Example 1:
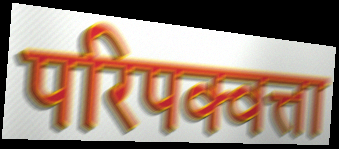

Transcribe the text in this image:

परिपक्वत्ता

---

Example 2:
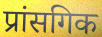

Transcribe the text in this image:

प्रांसगिक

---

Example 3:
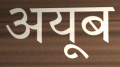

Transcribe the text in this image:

अयूब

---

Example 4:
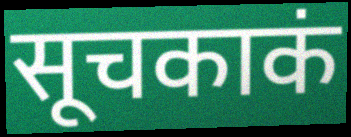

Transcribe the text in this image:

सूचकाकं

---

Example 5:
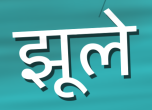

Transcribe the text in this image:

झूले